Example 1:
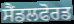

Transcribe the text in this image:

ਸੈਂਡਲਫੋਰਡ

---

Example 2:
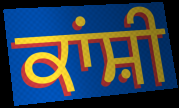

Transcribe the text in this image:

ਕਾਂਸ਼ੀ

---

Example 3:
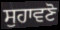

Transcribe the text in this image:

ਸੁਹਾਵਣੋ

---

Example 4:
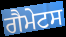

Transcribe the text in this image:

ਗੈਮੇਟਸ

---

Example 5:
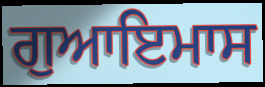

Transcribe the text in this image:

ਗੁਆਇਮਾਸ